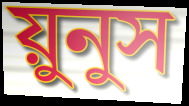
য়ুনুস